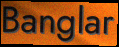
Banglar